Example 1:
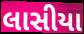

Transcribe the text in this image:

લાસીયા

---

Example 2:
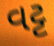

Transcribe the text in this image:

વટ્ટ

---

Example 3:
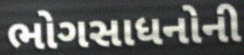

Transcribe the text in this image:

ભોગસાધનોની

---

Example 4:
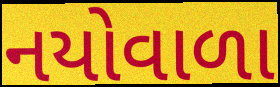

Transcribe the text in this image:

નયોવાળા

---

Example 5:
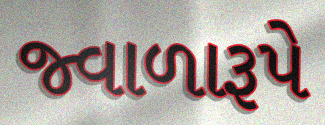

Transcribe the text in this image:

જ્વાળારૂપે